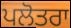
ਪਲੋਤਰਾ